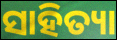
ସାହିତ୍ୟା